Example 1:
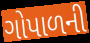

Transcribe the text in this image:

ગોપાળની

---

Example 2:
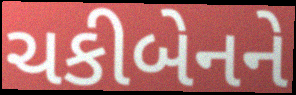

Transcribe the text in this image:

ચકીબેનને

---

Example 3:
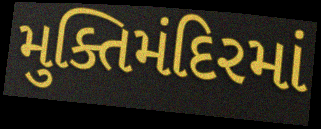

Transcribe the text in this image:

મુક્તિમંદિરમાં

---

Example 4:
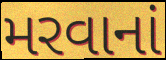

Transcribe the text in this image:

મરવાનાં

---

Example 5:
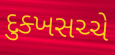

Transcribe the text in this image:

દુક્ખસચ્ચે